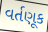
વર્તણૂક